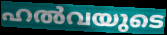
ഹൽവയുടെ